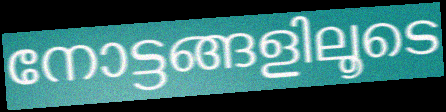
നോട്ടങ്ങളിലൂടെ